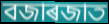
বজাৰজাত